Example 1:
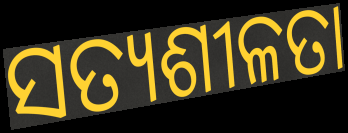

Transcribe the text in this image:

ସତ୍ୟଶୀଳତା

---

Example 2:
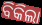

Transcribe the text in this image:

ବିକିଲା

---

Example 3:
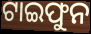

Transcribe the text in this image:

ଟାଇଫୁନ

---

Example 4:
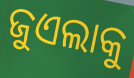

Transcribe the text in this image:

ଜୁଏଲାକୁ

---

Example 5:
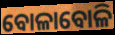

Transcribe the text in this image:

ବୋଳାବୋଳି